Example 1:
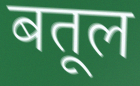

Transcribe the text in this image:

बतूल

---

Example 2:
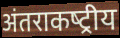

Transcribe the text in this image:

अंतराकष्ट्रीय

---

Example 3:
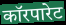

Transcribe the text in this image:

कॉरपारेट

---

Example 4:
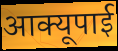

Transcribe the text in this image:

आक्यूपाई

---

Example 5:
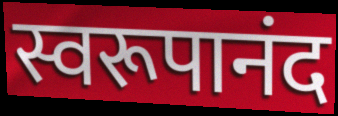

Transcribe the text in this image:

स्वरूपानंद